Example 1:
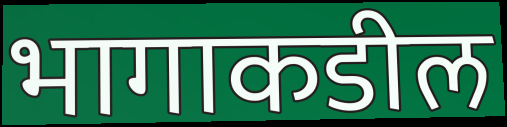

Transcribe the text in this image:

भागाकडील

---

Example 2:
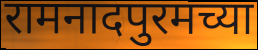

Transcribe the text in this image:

रामनादपुरमच्या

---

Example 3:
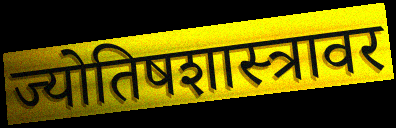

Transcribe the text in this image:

ज्योतिषशास्त्रावर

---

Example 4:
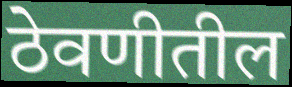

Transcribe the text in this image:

ठेवणीतील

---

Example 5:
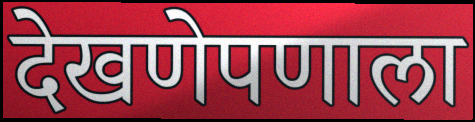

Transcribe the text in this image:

देखणेपणाला